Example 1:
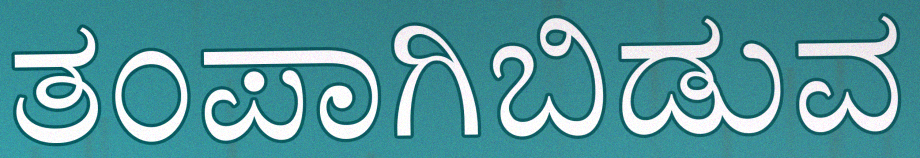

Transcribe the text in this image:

ತಂಪಾಗಿಬಿಡುವ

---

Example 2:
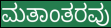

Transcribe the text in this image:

ಮತಾಂತರವು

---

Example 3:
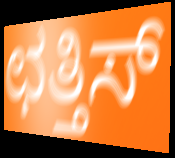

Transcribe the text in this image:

ಛತ್ತಿಸ್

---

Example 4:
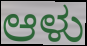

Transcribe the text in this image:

ಆಳು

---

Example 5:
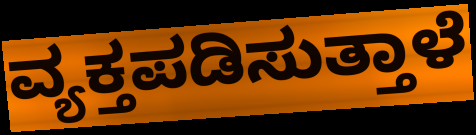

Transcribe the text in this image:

ವ್ಯಕ್ತಪಡಿಸುತ್ತಾಳೆ